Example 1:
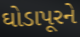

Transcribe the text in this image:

ઘોડાપૂરને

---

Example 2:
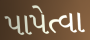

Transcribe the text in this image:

પાપેત્વા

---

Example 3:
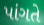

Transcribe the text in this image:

પાંગતે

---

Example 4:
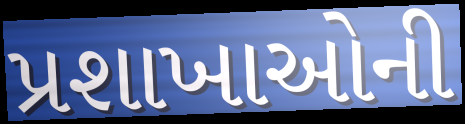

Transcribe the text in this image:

પ્રશાખાઓની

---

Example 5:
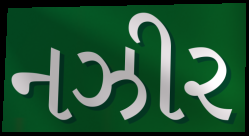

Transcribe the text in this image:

નઝીર